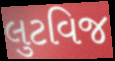
લુટવિજ